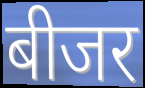
बीजर